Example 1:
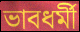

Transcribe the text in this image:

ভাবধর্মী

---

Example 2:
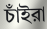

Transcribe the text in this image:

চাঁইরা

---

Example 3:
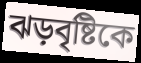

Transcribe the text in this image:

ঝড়বৃষ্টিকে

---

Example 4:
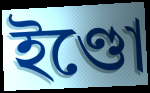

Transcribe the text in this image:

ইণ্ডো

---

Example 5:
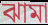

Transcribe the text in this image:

ঝামা